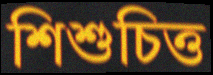
শিশুচিত্ত